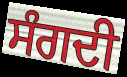
ਸੰਗਦੀ